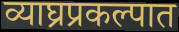
व्याघ्रप्रकल्पात